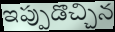
ఇప్పుడొచ్చిన